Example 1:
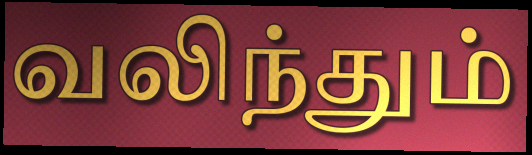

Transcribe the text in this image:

வலிந்தும்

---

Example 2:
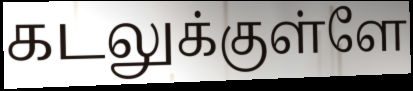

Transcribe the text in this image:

கடலுக்குள்ளே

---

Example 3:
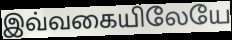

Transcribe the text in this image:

இவ்வகையிலேயே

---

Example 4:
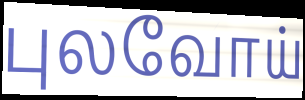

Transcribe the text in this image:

புலவோய்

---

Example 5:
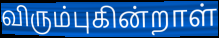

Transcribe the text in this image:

விரும்புகின்றாள்